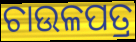
ଚାଉଳପତ୍ର